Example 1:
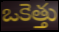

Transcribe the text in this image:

ఒకెత్తు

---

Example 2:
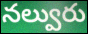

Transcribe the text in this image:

నల్వురు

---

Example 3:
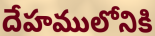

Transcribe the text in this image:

దేహములోనికి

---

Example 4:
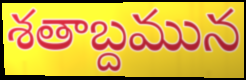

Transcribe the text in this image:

శతాబ్దమున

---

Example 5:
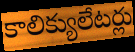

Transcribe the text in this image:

కాలిక్యులేటర్లు